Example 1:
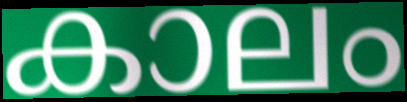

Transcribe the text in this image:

കാലം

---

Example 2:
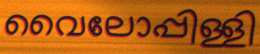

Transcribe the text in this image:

വൈലോപ്പിള്ളി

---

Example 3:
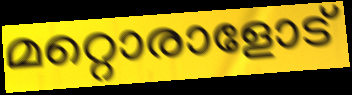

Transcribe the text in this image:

മറ്റൊരാളോട്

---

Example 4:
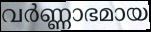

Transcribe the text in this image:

വർണ്ണാഭമായ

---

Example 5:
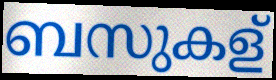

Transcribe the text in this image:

ബസുകള്